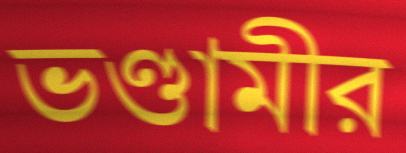
ভণ্ডামীর